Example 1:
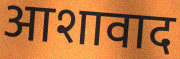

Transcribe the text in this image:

आशावाद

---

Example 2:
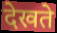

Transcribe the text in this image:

देखते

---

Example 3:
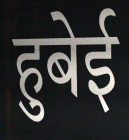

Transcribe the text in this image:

हुबेई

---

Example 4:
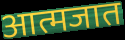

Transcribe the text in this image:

आत्मजात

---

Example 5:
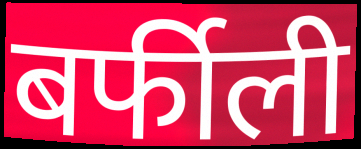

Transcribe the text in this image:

बर्फीली